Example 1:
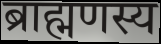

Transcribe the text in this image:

ब्राह्मणस्य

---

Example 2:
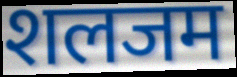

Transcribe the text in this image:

शलजम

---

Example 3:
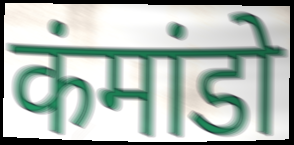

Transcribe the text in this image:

कंमांडो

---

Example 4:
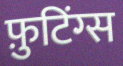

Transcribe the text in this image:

फ़ुटिंग्स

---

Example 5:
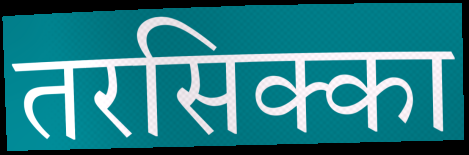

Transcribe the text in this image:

तरसिक्का